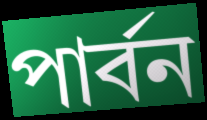
পাৰ্বন